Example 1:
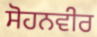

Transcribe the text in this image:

ਸੋਹਨਵੀਰ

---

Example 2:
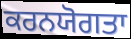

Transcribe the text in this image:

ਕਰਨਯੋਗਤਾ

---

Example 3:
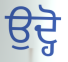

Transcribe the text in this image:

ਉਦ੍ਹੋ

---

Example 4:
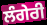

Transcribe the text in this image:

ਲੰਗੇਰੀ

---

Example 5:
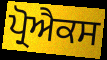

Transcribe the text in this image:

ਪ੍ਰੋਐਕਸ